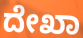
ದೇಖಾ